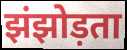
झंझोड़ता